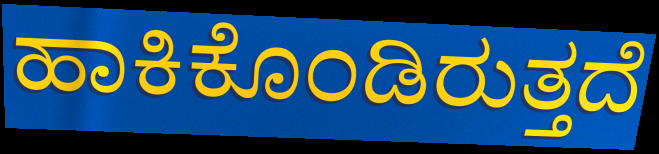
ಹಾಕಿಕೊಂಡಿರುತ್ತದೆ